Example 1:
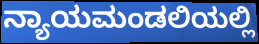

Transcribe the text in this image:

ನ್ಯಾಯಮಂಡಲಿಯಲ್ಲಿ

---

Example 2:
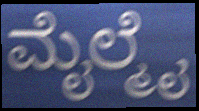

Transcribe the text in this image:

ಮೈಲ್ಮೈ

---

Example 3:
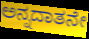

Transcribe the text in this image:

ಅನ್ನದಾತನೇ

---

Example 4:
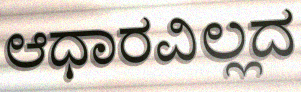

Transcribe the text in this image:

ಆಧಾರವಿಲ್ಲದ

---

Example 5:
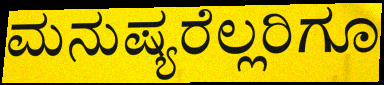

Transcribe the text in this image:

ಮನುಷ್ಯರೆಲ್ಲರಿಗೂ